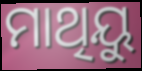
ମାଥିୟୁ